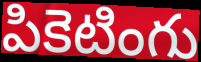
పికెటింగు